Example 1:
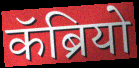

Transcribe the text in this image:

कॅब्रियो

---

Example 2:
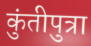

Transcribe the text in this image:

कुंतीपुत्रा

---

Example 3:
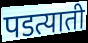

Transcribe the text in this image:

पडत्याती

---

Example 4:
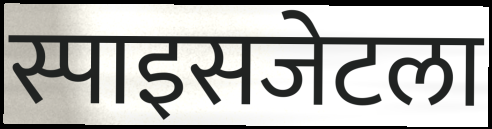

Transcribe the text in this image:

स्पाइसजेटला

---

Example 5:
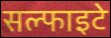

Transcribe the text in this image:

सल्फाइटे